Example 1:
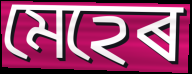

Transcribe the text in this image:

মেহেৰ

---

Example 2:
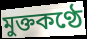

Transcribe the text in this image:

মুক্তকণ্ঠে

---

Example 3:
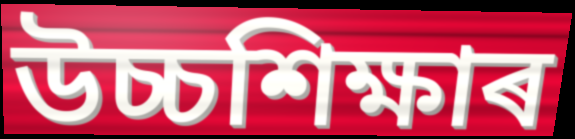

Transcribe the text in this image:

উচ্চশিক্ষাৰ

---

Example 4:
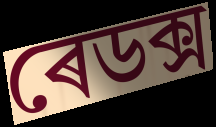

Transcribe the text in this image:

ৰেডক্স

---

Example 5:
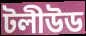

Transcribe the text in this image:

টলীউড